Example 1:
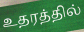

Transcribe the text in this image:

உதரத்தில்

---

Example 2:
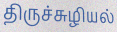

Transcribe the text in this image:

திருச்சுழியல்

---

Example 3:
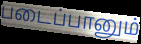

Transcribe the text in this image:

படைப்பானும்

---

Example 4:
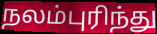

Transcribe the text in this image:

நலம்புரிந்து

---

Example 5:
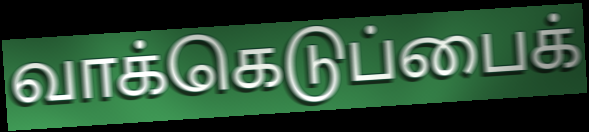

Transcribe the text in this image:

வாக்கெடுப்பைக்